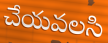
చేయవలసి